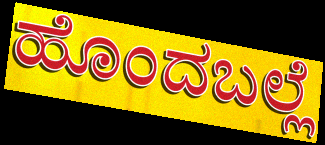
ಹೊಂದಬಲ್ಲೆ